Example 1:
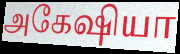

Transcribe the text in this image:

அகேஷியா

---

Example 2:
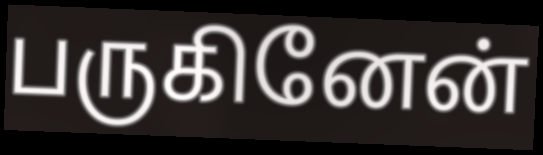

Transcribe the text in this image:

பருகினேன்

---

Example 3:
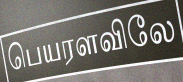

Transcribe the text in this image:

பெயரளவிலே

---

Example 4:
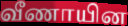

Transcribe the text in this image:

வீணாயின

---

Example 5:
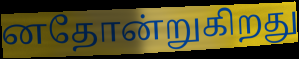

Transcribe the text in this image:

னதோன்றுகிறது